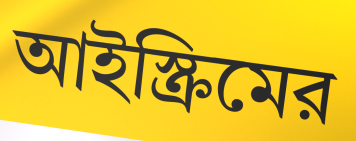
আইস্ক্রিমের